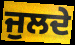
ਜੁਲਦੇ